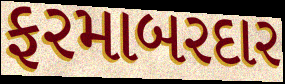
ફરમાબરદાર